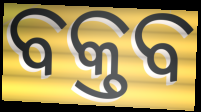
ବକ୍ତବ